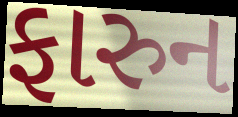
ફારુન